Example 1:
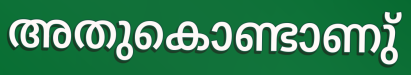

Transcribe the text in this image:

അതുകൊണ്ടാണു്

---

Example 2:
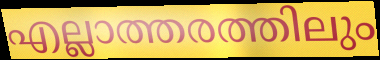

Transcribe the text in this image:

എല്ലാത്തരത്തിലും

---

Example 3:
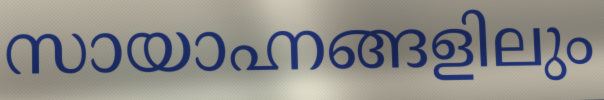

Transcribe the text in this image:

സായാഹ്നങ്ങളിലും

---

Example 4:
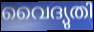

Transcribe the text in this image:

വൈദ്യുതി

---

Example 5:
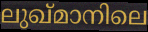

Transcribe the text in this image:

ലുഖ്മാനിലെ